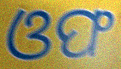
ଓଫ